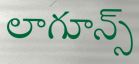
లాగూన్స్